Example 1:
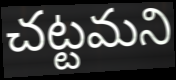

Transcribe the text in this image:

చట్టమని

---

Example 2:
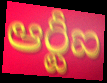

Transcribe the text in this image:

ఆర్టీఐ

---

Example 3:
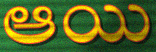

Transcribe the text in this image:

ఆయి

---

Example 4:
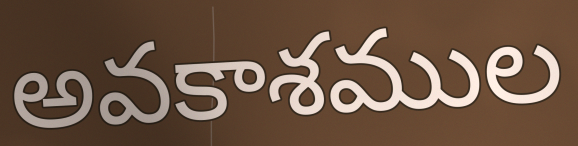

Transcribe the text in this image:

అవకాశముల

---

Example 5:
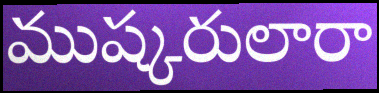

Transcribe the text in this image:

ముష్కరులారా